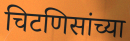
चिटणिसांच्या